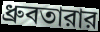
ধ্রুবতারার